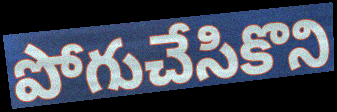
పోగుచేసికొని